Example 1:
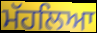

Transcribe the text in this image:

ਮੱਹਲਿਆ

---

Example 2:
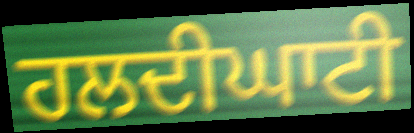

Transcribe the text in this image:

ਹਲਦੀਘਾਟੀ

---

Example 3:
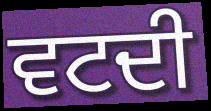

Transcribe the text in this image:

ਵਟਦੀ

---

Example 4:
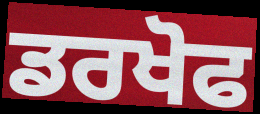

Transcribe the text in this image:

ਡਰਖੋਫ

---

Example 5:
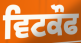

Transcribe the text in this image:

ਵਿਟਕੌਫ